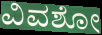
ವಿವಶೋ